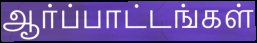
ஆர்ப்பாட்டங்கள்